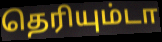
தெரியும்டா